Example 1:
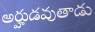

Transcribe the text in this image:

అర్హుడవుతాడు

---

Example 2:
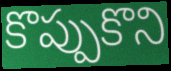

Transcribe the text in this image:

కొప్పుకొని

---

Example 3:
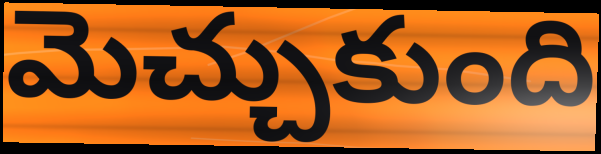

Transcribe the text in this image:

మెచ్చుకుంది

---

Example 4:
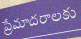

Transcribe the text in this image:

ప్రేమాదరాలకు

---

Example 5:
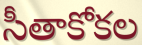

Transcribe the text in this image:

సీతాకోకల